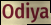
Odiya